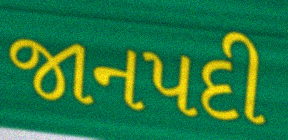
જાનપદી